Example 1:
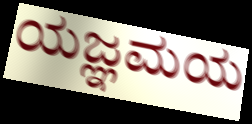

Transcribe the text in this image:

ಯಜ್ಞಮಯ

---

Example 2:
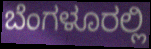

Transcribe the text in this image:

ಬೆಂಗಳೂರಲ್ಲಿ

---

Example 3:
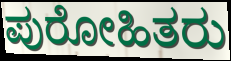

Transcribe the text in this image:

ಪುರೋಹಿತರು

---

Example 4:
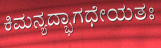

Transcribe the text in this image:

ಕಿಮನ್ಯದ್ಭಾಗಧೇಯತಃ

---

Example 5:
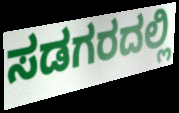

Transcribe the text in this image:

ಸಡಗರದಲ್ಲಿ